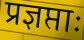
प्रज्ञप्ताः